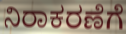
ನಿರಾಕರಣೆಗೆ